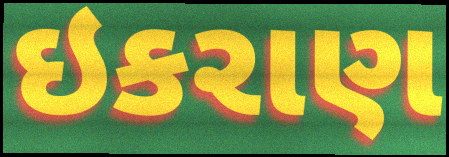
ઇકરાણ